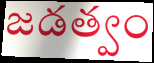
జడత్వం